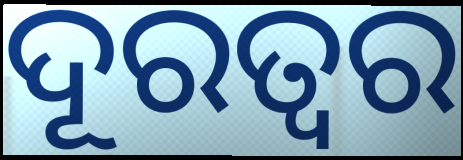
ଦୂରତ୍ଵର